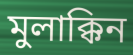
মুলাক্কিন